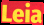
Leia